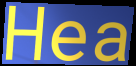
Hea